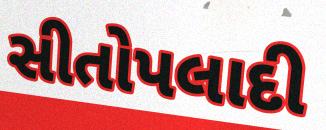
સીતોપલાદી